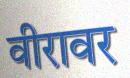
वीरावर